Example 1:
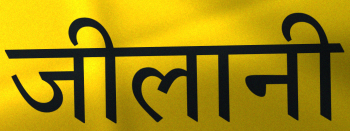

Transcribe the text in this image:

जीलानी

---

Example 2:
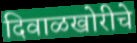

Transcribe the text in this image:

दिवाळखोरीचे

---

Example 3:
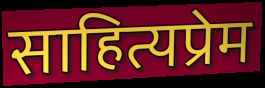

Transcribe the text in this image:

साहित्यप्रेम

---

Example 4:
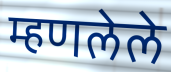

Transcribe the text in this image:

म्हणलेले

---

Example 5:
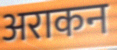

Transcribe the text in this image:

अराकन